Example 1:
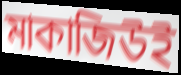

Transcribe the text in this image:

মাকাজিউই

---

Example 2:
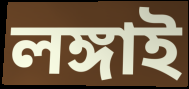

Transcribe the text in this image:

লঙ্গাই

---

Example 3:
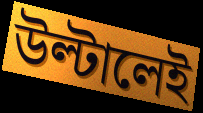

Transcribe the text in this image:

উল্টালেই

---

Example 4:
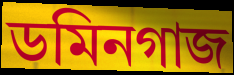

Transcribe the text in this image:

ডমিনগাজ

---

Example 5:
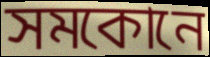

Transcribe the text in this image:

সমকোনে